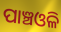
ପାଞ୍ଚଓଳି